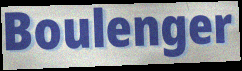
Boulenger